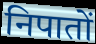
निपातों